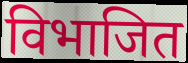
विभाजित